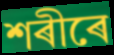
শৰীৰে